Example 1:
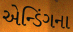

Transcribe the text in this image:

એન્ડિંગના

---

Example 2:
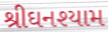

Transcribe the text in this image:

શ્રીઘનશ્યામ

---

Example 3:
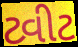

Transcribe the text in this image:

ટ્વીટ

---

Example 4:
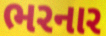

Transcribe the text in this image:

ભરનાર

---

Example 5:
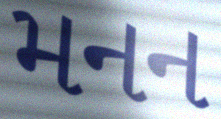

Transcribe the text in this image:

મનન